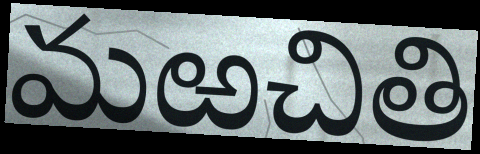
మఱచితి